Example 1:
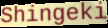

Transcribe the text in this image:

Shingeki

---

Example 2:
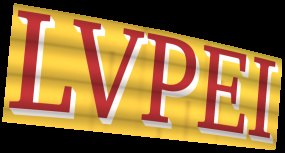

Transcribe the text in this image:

LVPEI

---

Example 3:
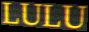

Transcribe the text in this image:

LULU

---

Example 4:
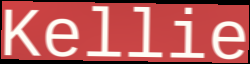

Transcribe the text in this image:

Kellie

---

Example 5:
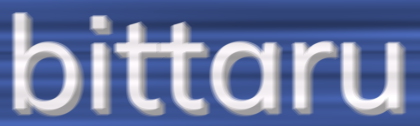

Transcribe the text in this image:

bittaru